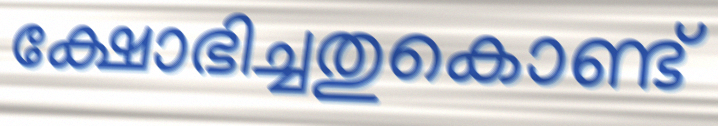
ക്ഷോഭിച്ചതുകൊണ്ട്